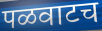
पळवाटच